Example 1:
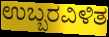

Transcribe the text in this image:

ಉಬ್ಬರವಿಳಿತ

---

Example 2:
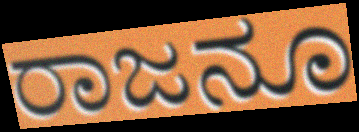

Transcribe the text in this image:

ರಾಜನೂ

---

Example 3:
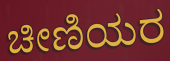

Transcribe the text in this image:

ಚೀಣಿಯರ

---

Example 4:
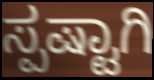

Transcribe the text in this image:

ಸ್ಪಷ್ಟಾಗಿ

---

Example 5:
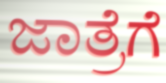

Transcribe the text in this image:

ಜಾತ್ರೆಗೆ